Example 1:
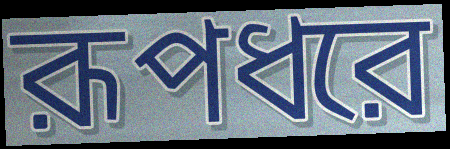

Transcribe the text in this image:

রূপধরে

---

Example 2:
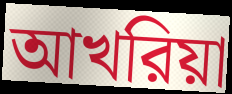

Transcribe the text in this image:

আখরিয়া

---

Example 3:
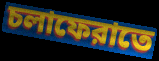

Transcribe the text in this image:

চলাফেরাতে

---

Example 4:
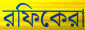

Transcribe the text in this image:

রফিকেরা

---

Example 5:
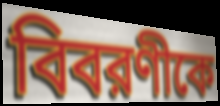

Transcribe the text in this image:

বিবরণীকে